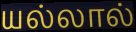
யல்லால்